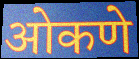
ओकणे